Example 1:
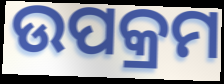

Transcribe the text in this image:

ଉପକ୍ରମ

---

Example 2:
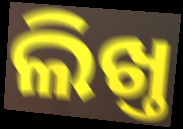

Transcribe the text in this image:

ଲିଖ୍ତ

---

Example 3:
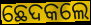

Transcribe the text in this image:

ଛେଦକଲେ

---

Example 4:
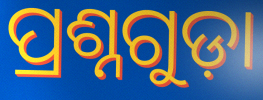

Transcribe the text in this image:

ପ୍ରଶ୍ନଗୁଡ଼ା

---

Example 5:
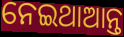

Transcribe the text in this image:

ନେଇଥାଆନ୍ତ